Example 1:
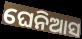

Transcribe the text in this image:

ଘେନିଆସ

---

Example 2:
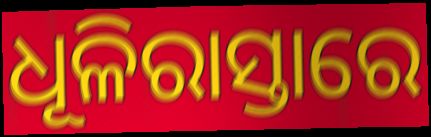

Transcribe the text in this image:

ଧୂଳିରାସ୍ତାରେ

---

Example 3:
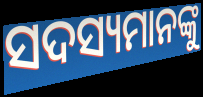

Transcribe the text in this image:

ସଦସ୍ୟମାନଙ୍କୁ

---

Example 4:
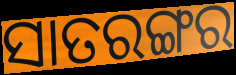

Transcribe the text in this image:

ସାତରଙ୍ଗର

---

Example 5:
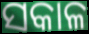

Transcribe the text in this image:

ସକାଳ